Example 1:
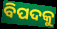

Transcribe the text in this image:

ବିପଦକୁ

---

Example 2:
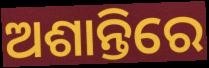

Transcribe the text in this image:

ଅଶାନ୍ତିରେ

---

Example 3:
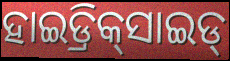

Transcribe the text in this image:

ହାଇଡ୍ରିକ୍‌ସାଇଡ୍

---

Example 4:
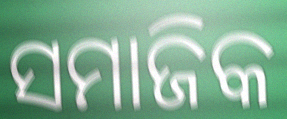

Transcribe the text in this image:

ସମାଜିକ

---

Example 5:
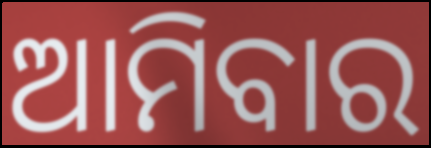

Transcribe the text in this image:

ଆମିବାର